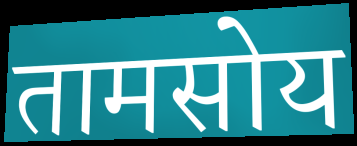
तामसोय